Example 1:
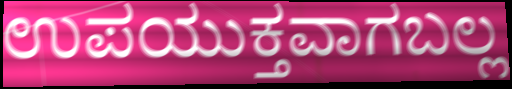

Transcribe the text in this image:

ಉಪಯುಕ್ತವಾಗಬಲ್ಲ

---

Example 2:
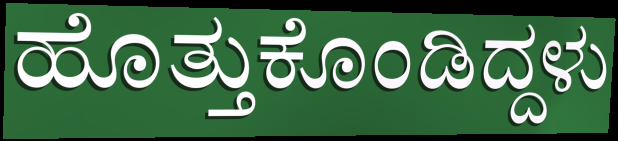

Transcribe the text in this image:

ಹೊತ್ತುಕೊಂಡಿದ್ದಳು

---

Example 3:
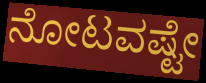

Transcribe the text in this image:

ನೋಟವಷ್ಟೇ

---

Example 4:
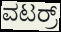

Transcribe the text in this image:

ವಟರ್ರ್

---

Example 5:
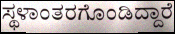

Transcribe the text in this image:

ಸ್ಥಳಾಂತರಗೊಂಡಿದ್ದಾರೆ